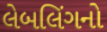
લેબલિંગનો